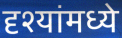
दृश्यांमध्ये